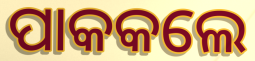
ପାକକଲେ